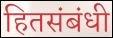
हितसंबंधी